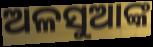
ଅଳସୁଆଙ୍କ